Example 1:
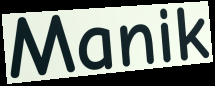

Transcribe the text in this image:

Manik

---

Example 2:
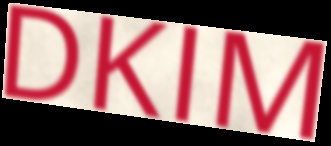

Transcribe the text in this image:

DKIM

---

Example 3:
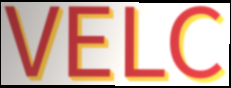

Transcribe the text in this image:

VELC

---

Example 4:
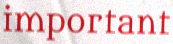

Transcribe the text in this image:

important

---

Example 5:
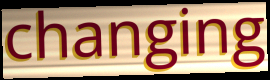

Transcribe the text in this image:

changing